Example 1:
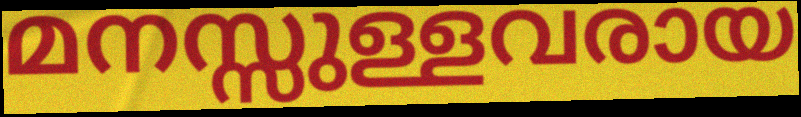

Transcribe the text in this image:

മനസ്സുള്ളവരായ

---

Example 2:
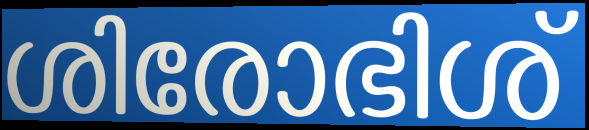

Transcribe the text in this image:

ശിരോഭിശ്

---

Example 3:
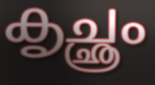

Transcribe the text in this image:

കൃച്ഛ്രം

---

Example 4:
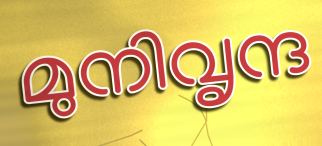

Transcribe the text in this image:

മുനിവൃന്ദ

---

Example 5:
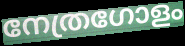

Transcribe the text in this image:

നേത്രഗോളം